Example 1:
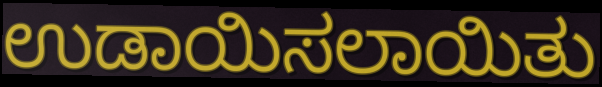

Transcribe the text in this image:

ಉಡಾಯಿಸಲಾಯಿತು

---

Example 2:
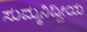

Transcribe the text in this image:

ಸುಮ್ಮನಿದ್ದೀಯ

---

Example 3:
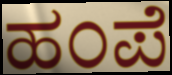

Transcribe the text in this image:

ಹಂಪೆ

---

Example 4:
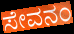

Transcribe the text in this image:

ಸೇವನಂ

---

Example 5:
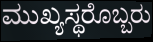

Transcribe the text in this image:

ಮುಖ್ಯಸ್ಥರೊಬ್ಬರು